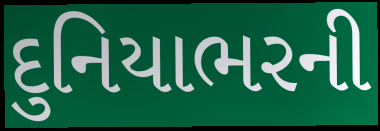
દુનિયાભરની